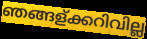
ഞങ്ങള്ക്കറിവില്ല